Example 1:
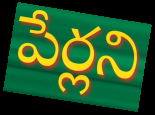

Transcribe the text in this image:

పేర్లని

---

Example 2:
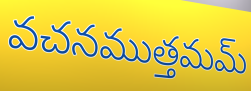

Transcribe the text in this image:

వచనముత్తమమ్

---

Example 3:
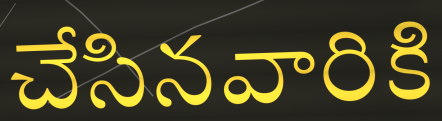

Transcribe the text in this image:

చేసినవారికి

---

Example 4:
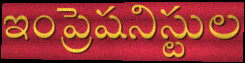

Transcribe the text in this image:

ఇంప్రెషనిస్టుల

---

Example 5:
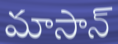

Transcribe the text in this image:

మాసాన్